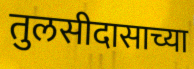
तुलसीदासाच्या